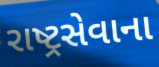
રાષ્ટ્રસેવાના